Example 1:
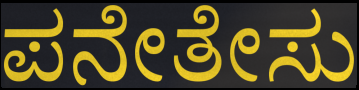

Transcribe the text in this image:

ಪನೇತೇಸು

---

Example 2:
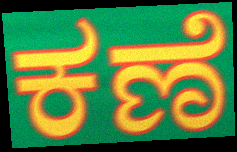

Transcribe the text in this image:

ಕಣೆ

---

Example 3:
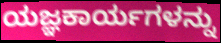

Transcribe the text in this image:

ಯಜ್ಞಕಾರ್ಯಗಳನ್ನು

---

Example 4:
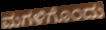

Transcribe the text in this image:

ಮಗಳಿಗೊಂದು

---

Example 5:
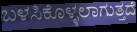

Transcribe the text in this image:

ಬಳಸಿಕೊಳ್ಳಲಾಗುತ್ತದೆ